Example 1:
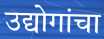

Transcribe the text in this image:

उद्योगांचा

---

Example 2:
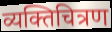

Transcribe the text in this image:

व्यक्तिचित्रण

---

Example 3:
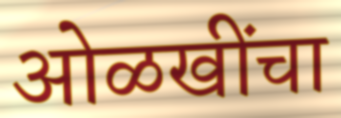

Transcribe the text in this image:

ओळखींचा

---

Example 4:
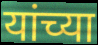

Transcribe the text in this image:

यांच्‍या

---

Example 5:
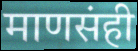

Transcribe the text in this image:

माणसंही